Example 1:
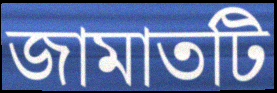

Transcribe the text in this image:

জামাতটি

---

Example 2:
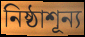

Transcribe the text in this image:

নিষ্ঠাশূন্য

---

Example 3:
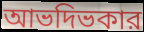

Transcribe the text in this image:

আভদিভকার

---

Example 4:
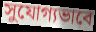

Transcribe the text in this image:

সুযোগ্যভাবে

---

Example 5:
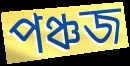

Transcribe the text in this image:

পঞ্চজ